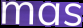
mas